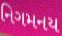
નિગમનય